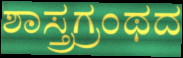
ಶಾಸ್ತ್ರಗ್ರಂಥದ